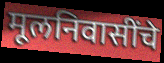
मूलनिवासींचे